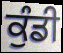
ਕੁੰਡੀ